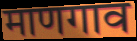
माणगाव